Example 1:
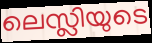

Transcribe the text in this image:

ലെസ്ലിയുടെ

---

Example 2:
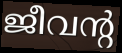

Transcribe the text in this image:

ജീവന്റ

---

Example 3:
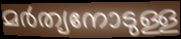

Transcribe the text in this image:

മർത്യനോടുള്ള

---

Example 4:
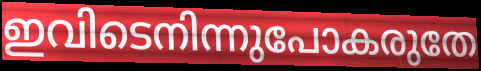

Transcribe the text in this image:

ഇവിടെനിന്നുപോകരുതേ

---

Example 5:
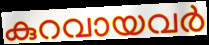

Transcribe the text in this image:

കുറവായവർ